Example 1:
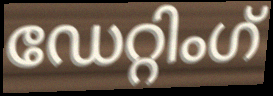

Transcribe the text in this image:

ഡേറ്റിംഗ്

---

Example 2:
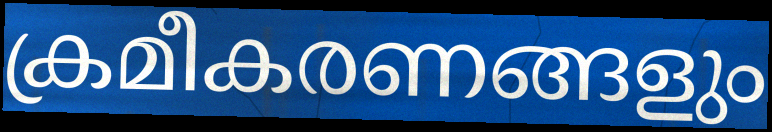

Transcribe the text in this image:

ക്രമീകരണങ്ങളും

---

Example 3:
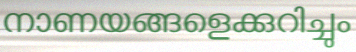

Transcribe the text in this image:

നാണയങ്ങളെക്കുറിച്ചും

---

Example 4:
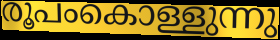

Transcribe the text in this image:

രൂപംകൊള്ളുന്നു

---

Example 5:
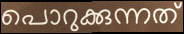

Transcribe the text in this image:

പൊറുക്കുന്നത്